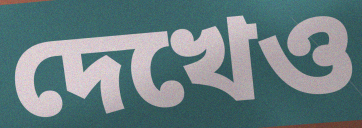
দেখেও